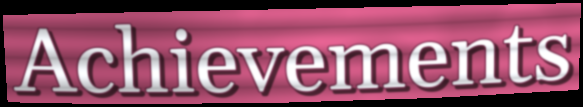
Achievements